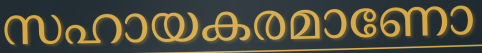
സഹായകരമാണോ